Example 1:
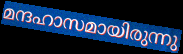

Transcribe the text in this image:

മന്ദഹാസമായിരുന്നു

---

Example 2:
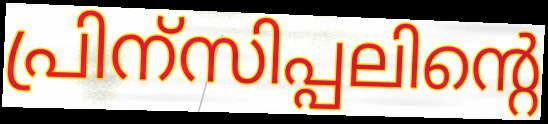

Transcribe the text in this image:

പ്രിന്സിപ്പലിന്റെ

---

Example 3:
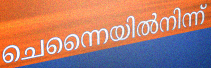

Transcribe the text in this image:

ചെന്നൈയിൽനിന്ന്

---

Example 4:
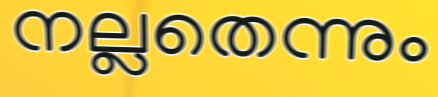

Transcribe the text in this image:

നല്ലതെന്നും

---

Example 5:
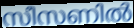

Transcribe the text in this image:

സീസണിൽ